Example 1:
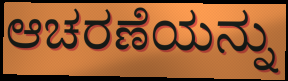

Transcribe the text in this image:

ಆಚರಣೆಯನ್ನು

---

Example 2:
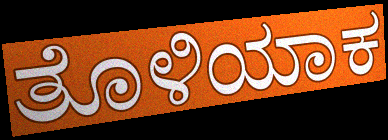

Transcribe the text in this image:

ತೊಳಿಯಾಕ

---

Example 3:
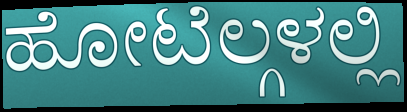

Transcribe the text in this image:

ಹೋಟೆಲ್ಗಳಲ್ಲಿ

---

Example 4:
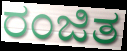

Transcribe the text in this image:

ರಂಜಿತ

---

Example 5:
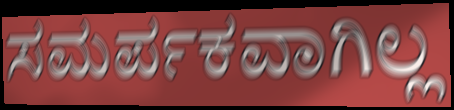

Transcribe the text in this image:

ಸಮರ್ಪಕವಾಗಿಲ್ಲ